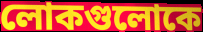
লোকগুলোকে